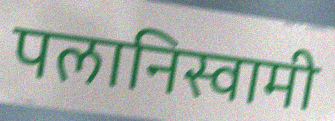
पलानिस्वामी